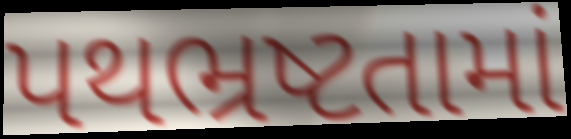
પથભ્રષ્ટતામાં